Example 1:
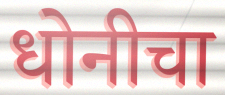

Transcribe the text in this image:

धोनीचा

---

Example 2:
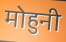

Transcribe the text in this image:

मोहुनी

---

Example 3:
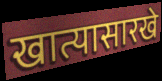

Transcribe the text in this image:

खात्यासारखे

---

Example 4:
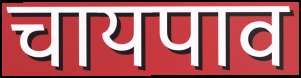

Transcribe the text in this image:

चायपाव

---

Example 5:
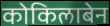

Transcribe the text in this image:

कोकिलाबेन